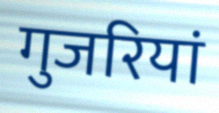
गुजरियां